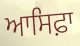
ਆਸਿਫ਼ਾ